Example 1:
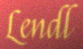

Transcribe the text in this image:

Lendl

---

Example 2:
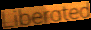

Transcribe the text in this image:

Liberated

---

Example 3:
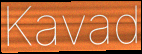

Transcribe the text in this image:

Kavad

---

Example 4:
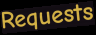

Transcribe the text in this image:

Requests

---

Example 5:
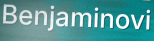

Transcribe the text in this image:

Benjaminovi